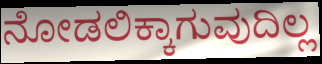
ನೋಡಲಿಕ್ಕಾಗುವುದಿಲ್ಲ